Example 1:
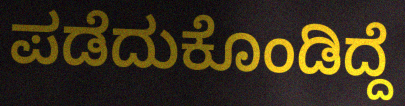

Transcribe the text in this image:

ಪಡೆದುಕೊಂಡಿದ್ದೆ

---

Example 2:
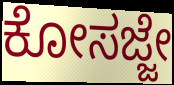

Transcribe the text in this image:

ಕೋಸಜ್ಜೇ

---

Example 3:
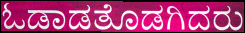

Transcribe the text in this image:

ಓಡಾಡತೊಡಗಿದರು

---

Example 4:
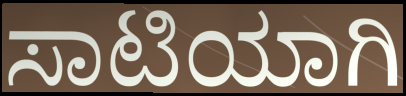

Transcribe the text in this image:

ಸಾಟಿಯಾಗಿ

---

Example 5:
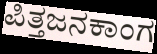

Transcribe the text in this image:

ಪಿತ್ತಜನಕಾಂಗ